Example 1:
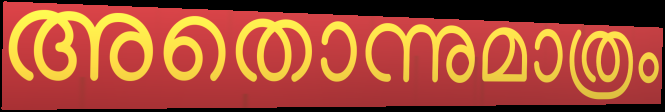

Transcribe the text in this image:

അതൊന്നുമാത്രം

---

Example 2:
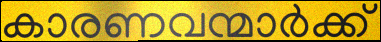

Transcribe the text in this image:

കാരണവന്മാർക്ക്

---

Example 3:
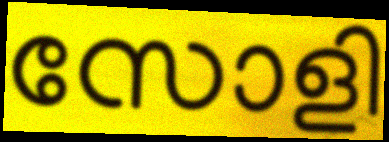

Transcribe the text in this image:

സോളി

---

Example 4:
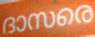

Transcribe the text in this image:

ദാസരെ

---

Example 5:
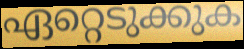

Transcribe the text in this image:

ഏറ്റെടുക്കുക